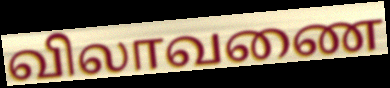
விலாவணை